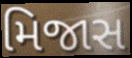
મિજાસ